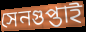
সেনগুপ্তাই